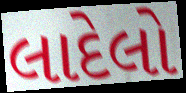
લાદેલો